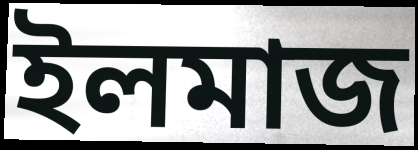
ইলমাজ